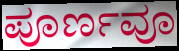
ಪೂರ್ಣವೂ